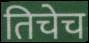
तिचेच